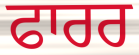
ਫਾਰਰ